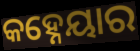
କହ୍ନେୟାର